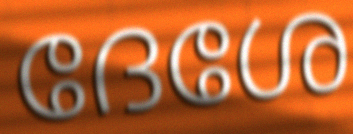
ദേശേ